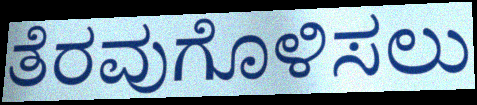
ತೆರವುಗೊಳಿಸಲು